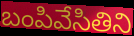
బంపివేసితిని